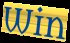
Win